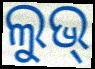
ଲୁଭ୍